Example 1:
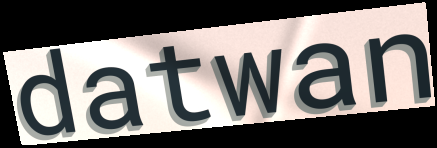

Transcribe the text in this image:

datwan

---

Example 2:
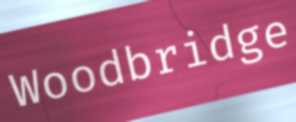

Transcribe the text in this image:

Woodbridge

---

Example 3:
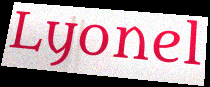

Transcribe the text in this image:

Lyonel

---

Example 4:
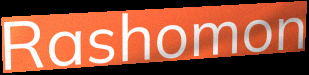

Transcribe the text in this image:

Rashomon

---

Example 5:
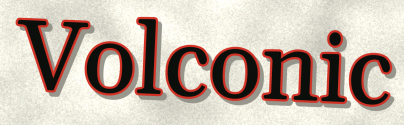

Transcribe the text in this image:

Volconic